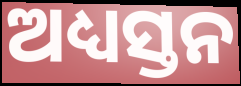
ଅଧ୍ୟସ୍ତନ